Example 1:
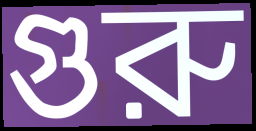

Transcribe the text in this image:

গুরু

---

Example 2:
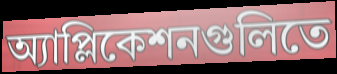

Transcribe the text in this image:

অ্যাপ্লিকেশনগুলিতে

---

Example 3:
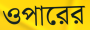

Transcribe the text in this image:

ওপারের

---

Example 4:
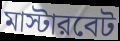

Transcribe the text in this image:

মাস্টারবেট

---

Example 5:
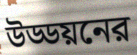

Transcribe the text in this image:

উড্ডয়নের